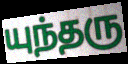
யுந்தரு